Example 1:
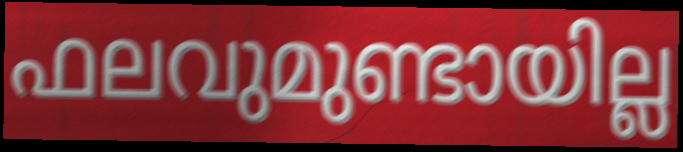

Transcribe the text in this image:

ഫലവുമുണ്ടായില്ല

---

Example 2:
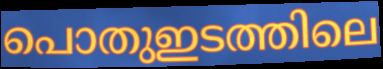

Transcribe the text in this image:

പൊതുഇടത്തിലെ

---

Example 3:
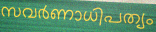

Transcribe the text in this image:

സവർണാധിപത്യം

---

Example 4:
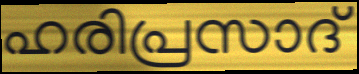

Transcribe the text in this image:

ഹരിപ്രസാദ്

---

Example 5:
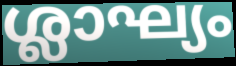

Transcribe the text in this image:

ശ്ലാഘ്യം